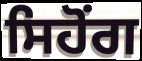
ਸਿਹੋਂਗ